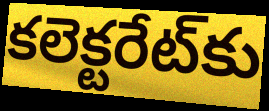
కలెక్టరేట్‌కు